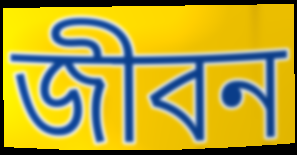
জীবন